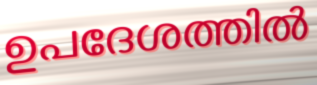
ഉപദേശത്തിൽ